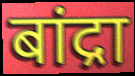
बांद्रा